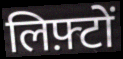
लिफ़्टों